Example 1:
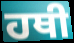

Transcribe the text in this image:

ਹਥੀ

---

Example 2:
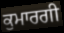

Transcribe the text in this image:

ਕੁਮਾਰਗੀ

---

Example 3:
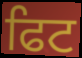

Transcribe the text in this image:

ਫਿਟ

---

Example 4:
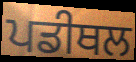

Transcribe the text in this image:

ਪਡੀਥਲ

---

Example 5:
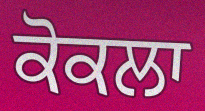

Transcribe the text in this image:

ਕੋਕਲਾ